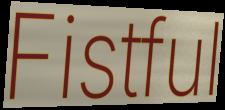
Fistful